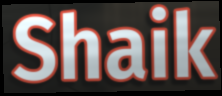
Shaik